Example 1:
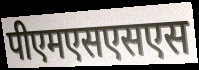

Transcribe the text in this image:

पीएमएसएसएस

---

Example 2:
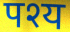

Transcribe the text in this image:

पश्य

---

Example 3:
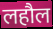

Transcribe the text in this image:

लहौल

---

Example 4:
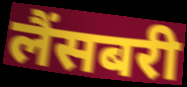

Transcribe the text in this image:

लैंसबरी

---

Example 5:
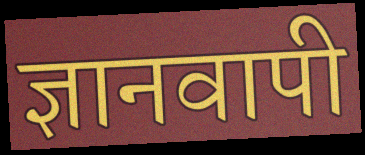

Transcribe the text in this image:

ज्ञानवापी